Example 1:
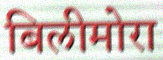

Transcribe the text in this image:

बिलीमोरा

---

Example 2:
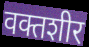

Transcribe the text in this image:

वक्तशीर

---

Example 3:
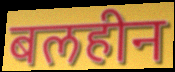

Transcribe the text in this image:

बलहीन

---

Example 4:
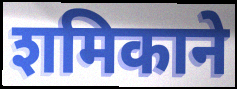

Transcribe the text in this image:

शमिकाने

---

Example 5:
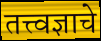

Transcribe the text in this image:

तत्त्वज्ञाचे